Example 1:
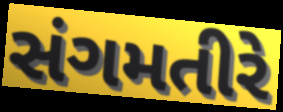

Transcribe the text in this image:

સંગમતીરે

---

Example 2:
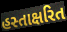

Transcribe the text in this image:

હસ્તાક્ષરિત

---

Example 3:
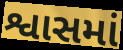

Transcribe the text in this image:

શ્વાસમાં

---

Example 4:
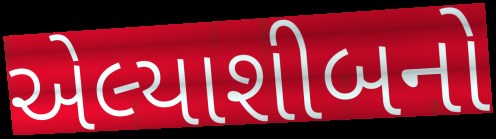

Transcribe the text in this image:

એલ્યાશીબનો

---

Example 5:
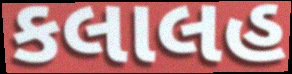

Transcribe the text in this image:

કલાલહ